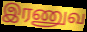
இரணுவ